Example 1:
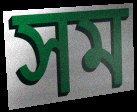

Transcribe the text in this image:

সম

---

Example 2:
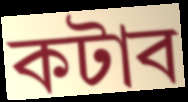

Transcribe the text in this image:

কটাব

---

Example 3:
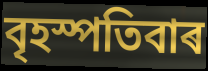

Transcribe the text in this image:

বৃহস্পতিবাৰ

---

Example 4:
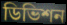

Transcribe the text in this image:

ডিভিশন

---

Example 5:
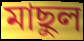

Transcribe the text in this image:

মাছুল